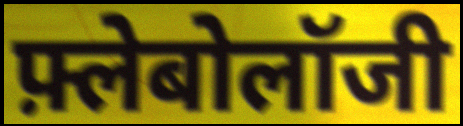
फ़्लेबोलॉजी